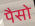
पैसो